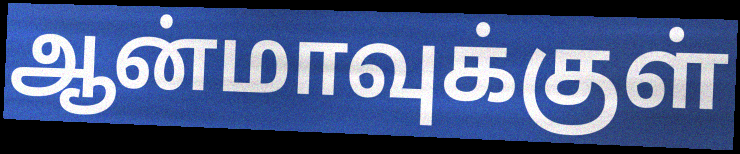
ஆன்மாவுக்குள்